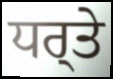
ਧਰ੍ਤੇ